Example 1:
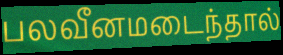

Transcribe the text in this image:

பலவீனமடைந்தால்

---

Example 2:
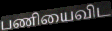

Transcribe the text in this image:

பணியைவிட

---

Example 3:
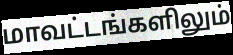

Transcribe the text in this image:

மாவட்டங்களிலும்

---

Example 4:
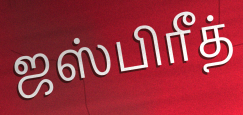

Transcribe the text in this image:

ஜஸ்பிரீத்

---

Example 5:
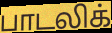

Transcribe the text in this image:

பாடலிக்